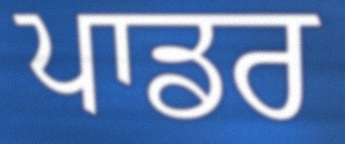
ਪਾਡਰ